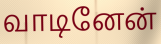
வாடினேன்